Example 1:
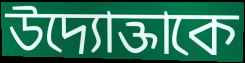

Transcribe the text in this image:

উদ্যোক্তাকে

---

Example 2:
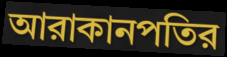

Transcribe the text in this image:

আরাকানপতির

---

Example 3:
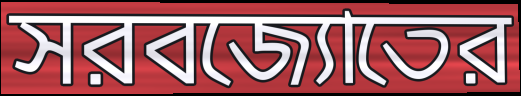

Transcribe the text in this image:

সরবজ্যোতের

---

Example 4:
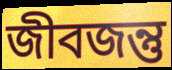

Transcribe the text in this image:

জীবজন্তু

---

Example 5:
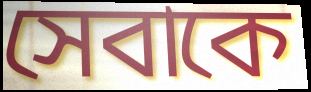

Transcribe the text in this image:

সেবাকে